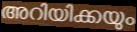
അറിയിക്കയും